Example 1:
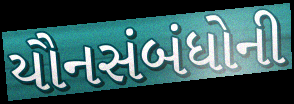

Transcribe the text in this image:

યૌનસંબંધોની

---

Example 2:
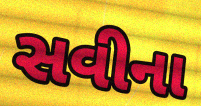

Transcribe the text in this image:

સવીના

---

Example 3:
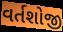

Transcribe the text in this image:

વર્તશોજી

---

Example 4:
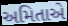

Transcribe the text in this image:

અમિતાએ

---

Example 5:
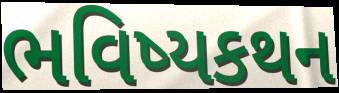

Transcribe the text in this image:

ભવિષ્યકથન